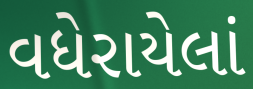
વધેરાયેલાં